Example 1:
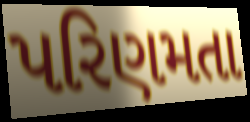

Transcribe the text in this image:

પરિણમતા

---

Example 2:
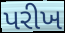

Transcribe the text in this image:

પરીખ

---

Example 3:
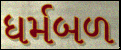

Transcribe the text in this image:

ધર્મબળ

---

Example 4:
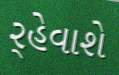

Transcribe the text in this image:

ર્‌હેવાશે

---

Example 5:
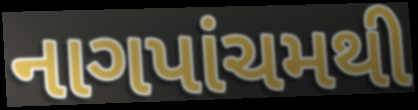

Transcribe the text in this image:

નાગપાંચમથી